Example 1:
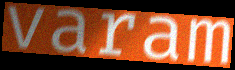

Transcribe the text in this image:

varam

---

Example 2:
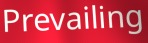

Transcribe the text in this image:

Prevailing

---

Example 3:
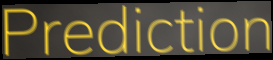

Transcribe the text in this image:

Prediction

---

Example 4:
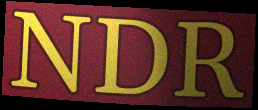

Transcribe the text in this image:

NDR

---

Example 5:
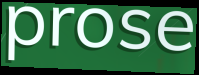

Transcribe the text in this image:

prose